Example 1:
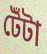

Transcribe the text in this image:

টেঁটা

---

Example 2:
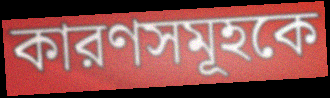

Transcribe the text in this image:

কারণসমূহকে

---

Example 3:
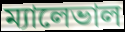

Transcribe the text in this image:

ম্যালেভাল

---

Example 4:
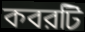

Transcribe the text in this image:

কবরটি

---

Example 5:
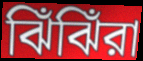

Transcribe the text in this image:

ঝিঁঝিঁরা